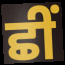
ਛੀਂ